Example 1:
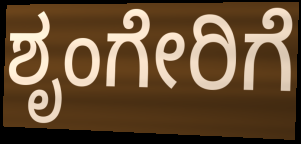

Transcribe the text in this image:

ಶೃಂಗೇರಿಗೆ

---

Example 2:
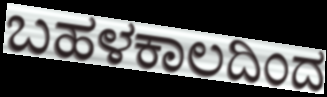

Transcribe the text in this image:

ಬಹಳಕಾಲದಿಂದ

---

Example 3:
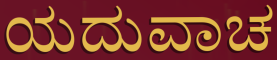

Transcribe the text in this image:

ಯದುವಾಚ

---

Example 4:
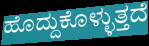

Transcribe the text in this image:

ಹೊದ್ದುಕೊಳ್ಳುತ್ತದೆ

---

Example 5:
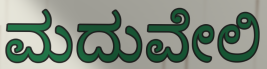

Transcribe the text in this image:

ಮದುವೇಲಿ